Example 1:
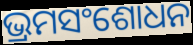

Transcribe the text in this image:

ଭ୍ରମସଂଶୋଧନ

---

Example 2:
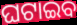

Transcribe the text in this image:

ଘଟାଇବ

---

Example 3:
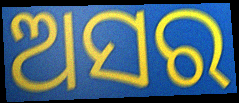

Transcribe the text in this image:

ଅସର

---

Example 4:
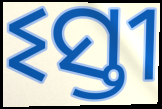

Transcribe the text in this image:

ଽସ୍ତୀ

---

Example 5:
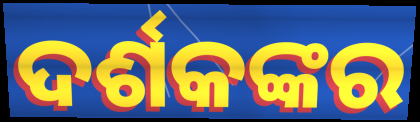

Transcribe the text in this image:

ଦର୍ଶକଙ୍କର